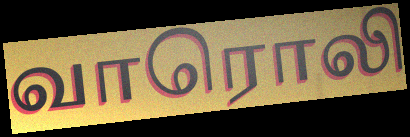
வாரொலி